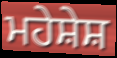
ਮਹੇਸ਼ੇਸ਼